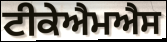
ਟੀਕੇਐਮਐਸ